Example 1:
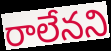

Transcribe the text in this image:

రాలేనని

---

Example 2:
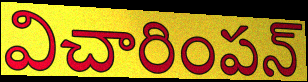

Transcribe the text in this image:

విచారింపన్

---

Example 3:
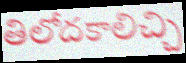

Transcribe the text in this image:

తిలోదకాలిచ్చి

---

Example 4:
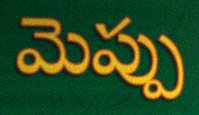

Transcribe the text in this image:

మెప్పు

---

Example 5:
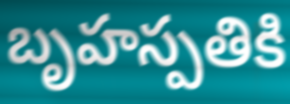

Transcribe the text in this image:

బృహస్పతికి